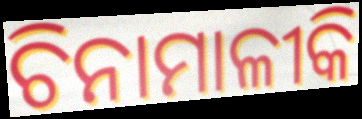
ଚିନାମାଳୀକି